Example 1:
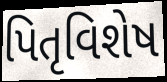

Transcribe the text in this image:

પિતૃવિશેષ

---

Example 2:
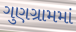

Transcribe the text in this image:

ગુણગ્રામમાં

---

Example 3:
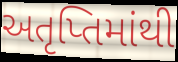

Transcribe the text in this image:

અતૃપ્તિમાંથી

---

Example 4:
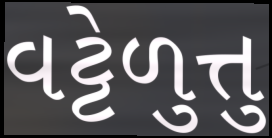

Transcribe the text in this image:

વટ્ટેળુત્તુ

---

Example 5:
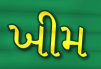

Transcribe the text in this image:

ખીમ